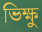
ভিক্ষু